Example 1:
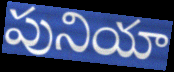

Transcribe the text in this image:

పునియా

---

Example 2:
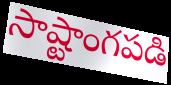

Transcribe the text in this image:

సాష్టాంగపడి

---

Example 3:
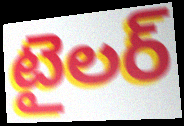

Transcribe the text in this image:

టైలర్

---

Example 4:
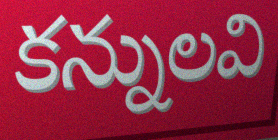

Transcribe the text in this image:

కన్నులవి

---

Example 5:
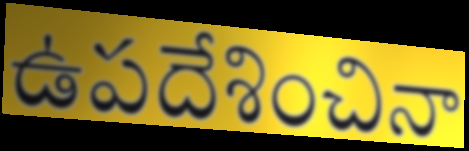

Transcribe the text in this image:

ఉపదేశించినా